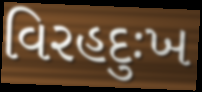
વિરહદુઃખ